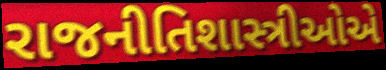
રાજનીતિશાસ્ત્રીઓએ